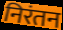
निरंतन